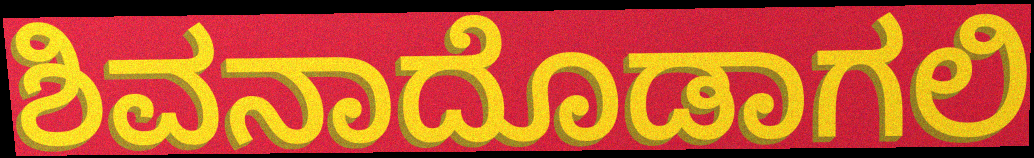
ಶಿವನಾದೊಡಾಗಲಿ